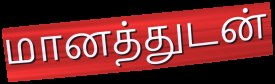
மானத்துடன்